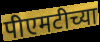
पीएमटीच्या